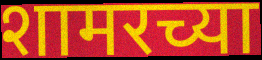
शामरच्या